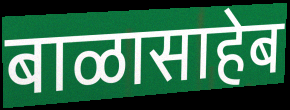
बाळासाहेब